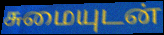
சுமையுடன்